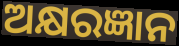
ଅକ୍ଷରଜ୍ଞାନ